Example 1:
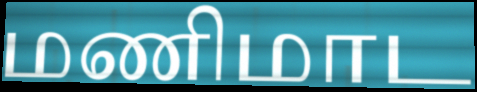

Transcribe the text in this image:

மணிமாட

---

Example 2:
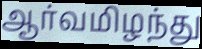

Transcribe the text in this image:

ஆர்வமிழந்து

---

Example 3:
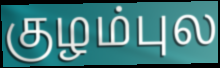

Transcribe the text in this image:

குழம்புல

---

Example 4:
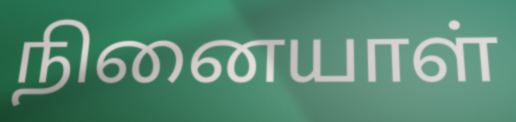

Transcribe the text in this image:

நினையாள்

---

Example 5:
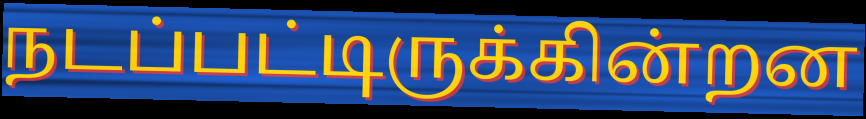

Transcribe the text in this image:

நடப்பட்டிருக்கின்றன